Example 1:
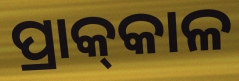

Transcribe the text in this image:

ପ୍ରାକ୍‌କାଳ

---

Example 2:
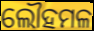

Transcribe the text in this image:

ଲୌହମଳ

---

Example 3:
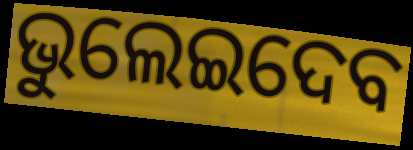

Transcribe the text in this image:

ଭୁଲେଇଦେବ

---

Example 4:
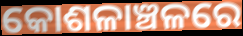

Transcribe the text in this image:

କୋଶଳାଞ୍ଚଳରେ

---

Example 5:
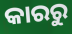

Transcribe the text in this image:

କାରରୁ